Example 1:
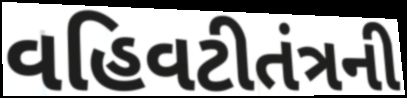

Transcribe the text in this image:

વહિવટીતંત્રની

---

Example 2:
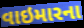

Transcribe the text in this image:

વાઇમારના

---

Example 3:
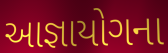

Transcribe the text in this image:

આજ્ઞાયોગના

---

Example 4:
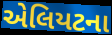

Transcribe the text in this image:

એલિયટના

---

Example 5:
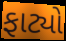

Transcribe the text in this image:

ફાટ્યો